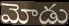
మోడు